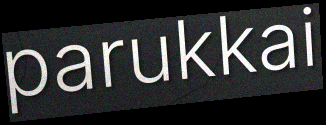
parukkai